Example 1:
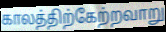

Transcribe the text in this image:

காலத்திற்கேற்றவாறு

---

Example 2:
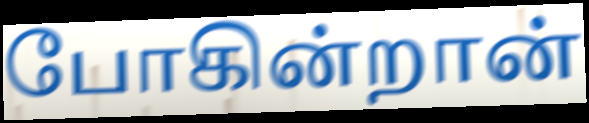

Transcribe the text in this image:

போகின்றான்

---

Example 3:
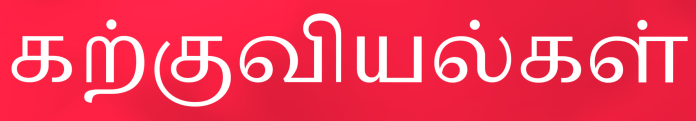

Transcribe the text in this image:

கற்குவியல்கள்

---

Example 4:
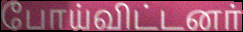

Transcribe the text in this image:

போய்விட்டனர்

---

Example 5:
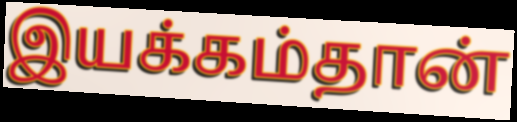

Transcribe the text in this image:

இயக்கம்தான்